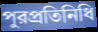
পুরপ্রতিনিধি